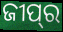
ଜୀପ୍‌ର